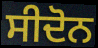
ਸੀਦੋਨ